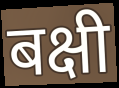
बक्षी